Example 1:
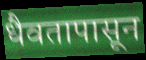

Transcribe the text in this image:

धैवतापासून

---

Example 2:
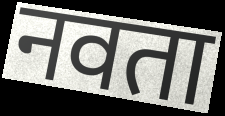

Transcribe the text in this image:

नवता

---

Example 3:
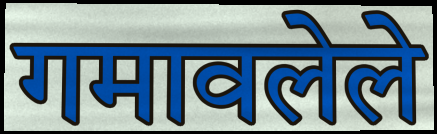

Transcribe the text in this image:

गमावलेले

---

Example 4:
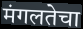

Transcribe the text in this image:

मंगलतेचा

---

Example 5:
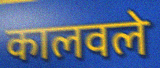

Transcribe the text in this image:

कालवले